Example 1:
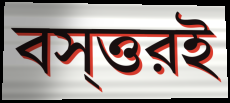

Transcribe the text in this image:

বস্ত্তরই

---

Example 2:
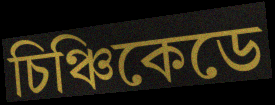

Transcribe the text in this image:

চিঞ্চিকেডে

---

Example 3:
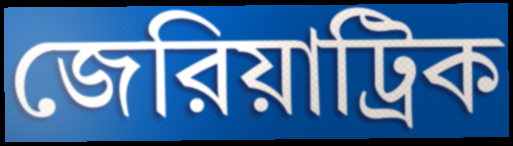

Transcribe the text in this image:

জেরিয়াট্রিক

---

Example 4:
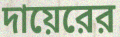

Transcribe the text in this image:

দায়েরের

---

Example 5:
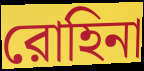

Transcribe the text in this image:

রোহিনা